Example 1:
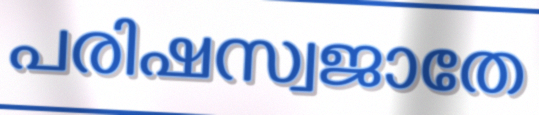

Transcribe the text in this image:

പരിഷസ്വജാതേ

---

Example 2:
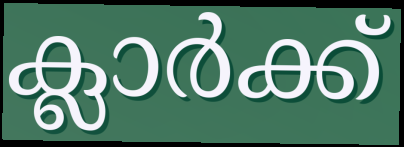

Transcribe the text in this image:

ക്ലാർക്ക്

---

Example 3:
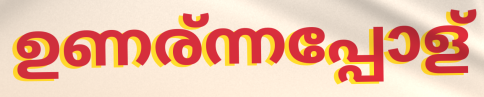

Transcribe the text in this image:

ഉണര്ന്നപ്പോള്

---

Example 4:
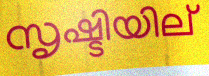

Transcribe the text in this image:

സൃഷ്ടിയില്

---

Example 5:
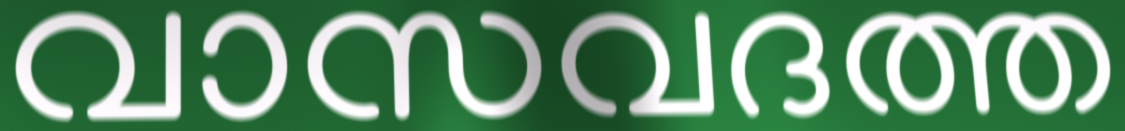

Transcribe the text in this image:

വാസവദത്ത